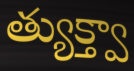
త్యుక్త్వా